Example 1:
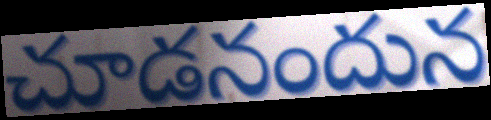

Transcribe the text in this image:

చూడనందున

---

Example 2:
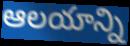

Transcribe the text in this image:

ఆలయాన్ని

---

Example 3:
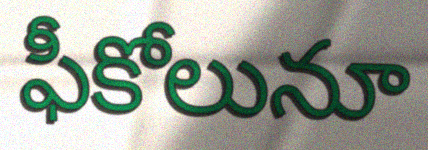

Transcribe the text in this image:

ఫీకోలునూ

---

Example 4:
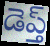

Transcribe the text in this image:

డెప్త్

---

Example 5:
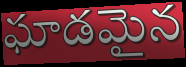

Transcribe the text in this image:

ఘాడమైన